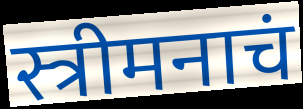
स्त्रीमनाचं